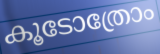
കൂടോത്രോം